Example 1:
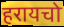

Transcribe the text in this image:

हरायचो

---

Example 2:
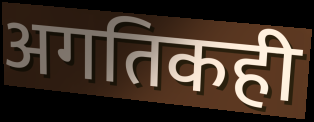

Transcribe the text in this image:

अगतिकही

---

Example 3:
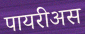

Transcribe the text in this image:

पायरीअस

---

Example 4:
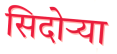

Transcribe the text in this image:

सिदोर्‍या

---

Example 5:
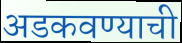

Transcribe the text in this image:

अडकवण्याची